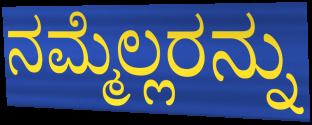
ನಮ್ಮೆಲ್ಲರನ್ನು